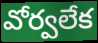
వోర్వలేక